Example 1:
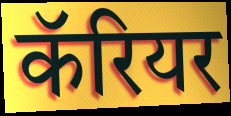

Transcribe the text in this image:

कॅरियर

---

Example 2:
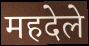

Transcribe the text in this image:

महदेले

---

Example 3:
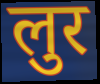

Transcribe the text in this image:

लुर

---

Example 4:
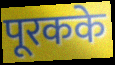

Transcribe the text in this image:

पूरकके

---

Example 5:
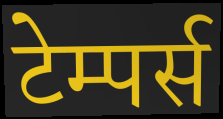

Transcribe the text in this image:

टेम्पर्स